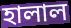
হালাল